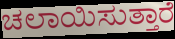
ಚಲಾಯಿಸುತ್ತಾರೆ